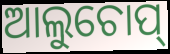
ଆଲୁଚୋପ୍